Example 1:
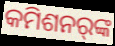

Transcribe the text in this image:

କମିଶନର୍‌ଙ୍କ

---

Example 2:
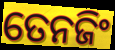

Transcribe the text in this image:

ତେନଜିଂ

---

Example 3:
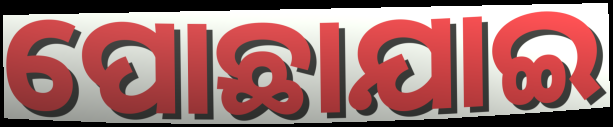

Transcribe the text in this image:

ପୋଛାଯାଇ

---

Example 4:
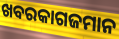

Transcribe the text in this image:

ଖବରକାଗଜମାନ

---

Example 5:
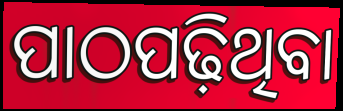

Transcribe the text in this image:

ପାଠପଢ଼ିଥିବା